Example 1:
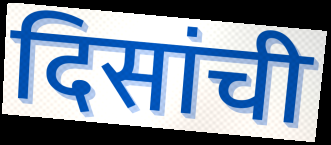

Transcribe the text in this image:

दिसांची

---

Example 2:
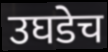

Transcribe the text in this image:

उघडेच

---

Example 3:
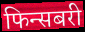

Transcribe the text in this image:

फिन्सबरी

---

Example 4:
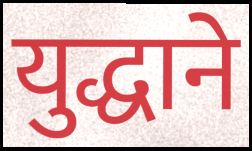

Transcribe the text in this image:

युद्धाने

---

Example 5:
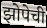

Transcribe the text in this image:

झोपेची